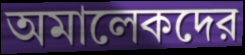
অমালেকদের